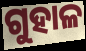
ଗୁହାଳ